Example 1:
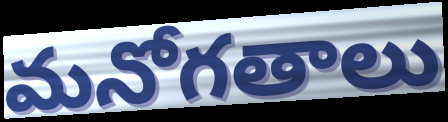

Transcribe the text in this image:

మనోగతాలు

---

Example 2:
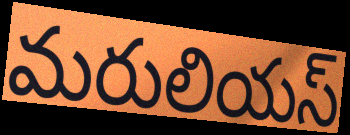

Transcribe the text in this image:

మరులియస్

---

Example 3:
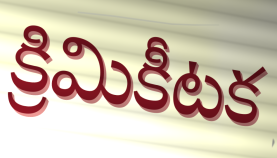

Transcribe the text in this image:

క్రిమికీటక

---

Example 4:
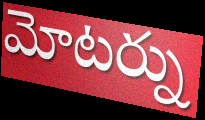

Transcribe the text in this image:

మోటర్ను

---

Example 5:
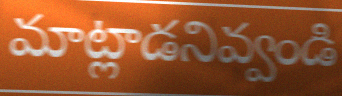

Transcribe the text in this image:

మాట్లాడనివ్వండి